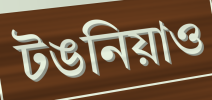
টঙনিয়াও